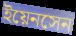
ইয়েনসেন